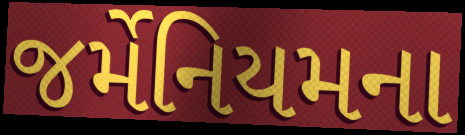
જર્મેનિયમના